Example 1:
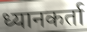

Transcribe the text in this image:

ध्यानकर्ता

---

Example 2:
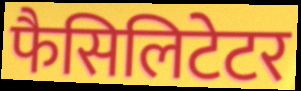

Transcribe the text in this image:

फैसिलिटेटर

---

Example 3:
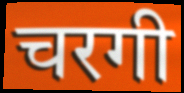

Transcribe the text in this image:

चरगी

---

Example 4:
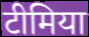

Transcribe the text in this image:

टीमिया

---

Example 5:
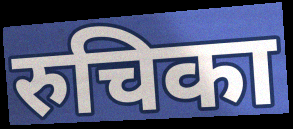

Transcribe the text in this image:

रुचिका